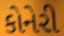
કોનેરી